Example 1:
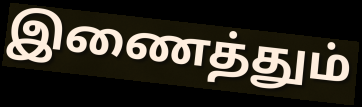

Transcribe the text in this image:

இணைத்தும்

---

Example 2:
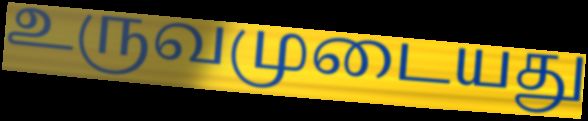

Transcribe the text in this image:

உருவமுடையது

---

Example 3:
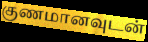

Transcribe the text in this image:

குணமானவுடன்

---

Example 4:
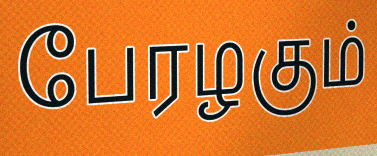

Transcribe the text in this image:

பேரழகும்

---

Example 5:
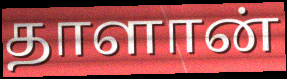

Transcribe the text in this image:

தாளான்